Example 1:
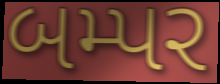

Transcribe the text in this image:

બમ્પર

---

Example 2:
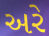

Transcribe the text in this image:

અરે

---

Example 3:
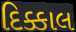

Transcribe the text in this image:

દિક્કાલ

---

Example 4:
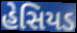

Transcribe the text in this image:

હેસિયડ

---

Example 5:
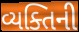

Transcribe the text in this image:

વ્યક્તિની